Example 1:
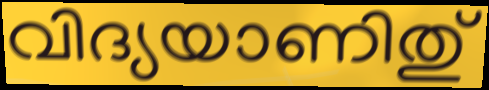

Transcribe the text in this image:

വിദ്യയാണിതു്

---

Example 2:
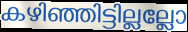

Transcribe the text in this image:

കഴിഞ്ഞിട്ടില്ലല്ലോ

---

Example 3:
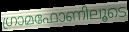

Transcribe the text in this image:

ഗ്രാമഫോണിലൂടെ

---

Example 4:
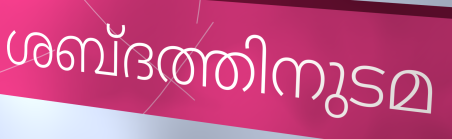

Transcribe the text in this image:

ശബ്ദത്തിനുടമ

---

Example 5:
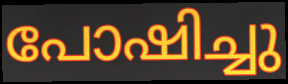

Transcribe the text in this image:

പോഷിച്ചു